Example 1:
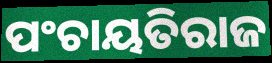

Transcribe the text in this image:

ପଂଚାୟତିରାଜ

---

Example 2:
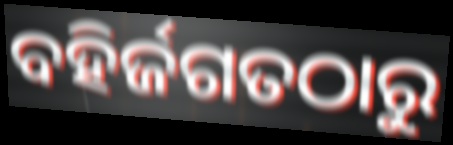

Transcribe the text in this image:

ବହିର୍ଜଗତଠାରୁ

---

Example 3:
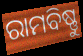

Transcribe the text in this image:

ରାମବିଷ୍ଣୁ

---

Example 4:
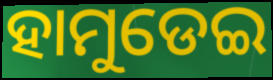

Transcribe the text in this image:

ହାମୁଡେଇ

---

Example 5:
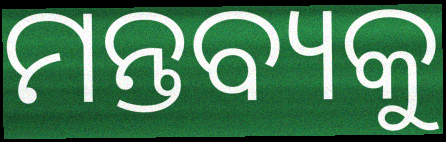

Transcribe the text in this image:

ମନ୍ତବ୍ୟକୁ